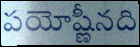
పయోష్ణీనది